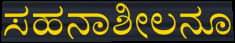
ಸಹನಾಶೀಲನೂ